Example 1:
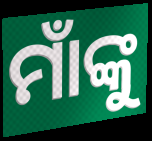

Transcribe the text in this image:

ମାଁଙ୍କୁ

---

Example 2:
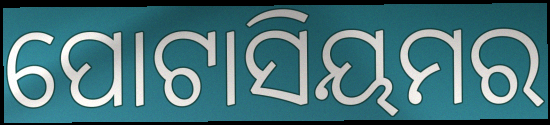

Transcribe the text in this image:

ପୋଟାସିୟମର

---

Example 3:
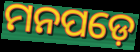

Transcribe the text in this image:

ମନପଡ଼େ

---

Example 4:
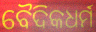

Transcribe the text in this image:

ବୈଦିକଧର୍ମ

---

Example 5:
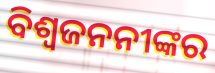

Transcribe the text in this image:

ବିଶ୍ୱଜନନୀଙ୍କର